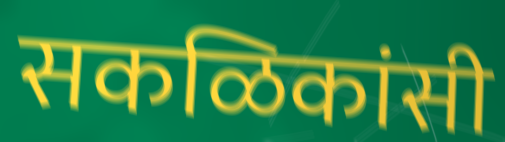
सकळिकांसी